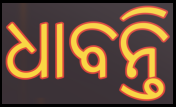
ଧାବନ୍ତି